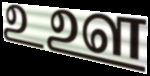
உஊ